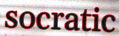
socratic